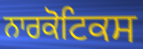
ਨਾਰਕੋਟਿਕਸ